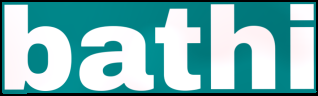
bathi